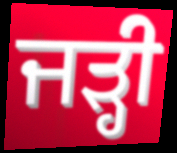
ਜੜ੍ਹੀ